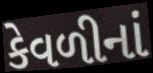
કેવળીનાં